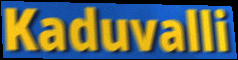
Kaduvalli